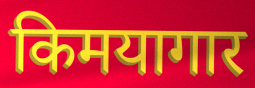
किमयागार